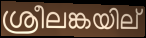
ശ്രീലങ്കയില്